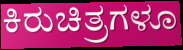
ಕಿರುಚಿತ್ರಗಳೂ